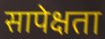
सापेक्षता